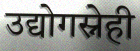
उद्योगस्नेही